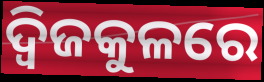
ଦ୍ୱିଜକୁଳରେ